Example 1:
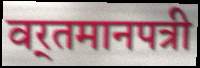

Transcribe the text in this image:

वर्तमानपत्री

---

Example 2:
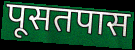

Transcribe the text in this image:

पूसतपास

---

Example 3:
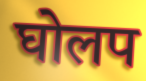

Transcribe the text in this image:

घोलप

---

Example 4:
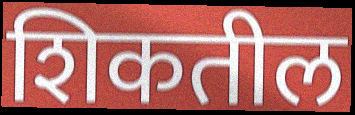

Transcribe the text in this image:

शिकतील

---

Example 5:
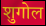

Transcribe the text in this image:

शुगोल